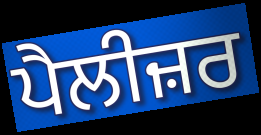
ਪੈਲੀਜ਼ਰ